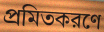
প্রমিতকরণে